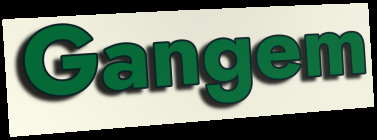
Gangem